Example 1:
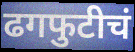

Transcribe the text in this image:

ढगफुटीचं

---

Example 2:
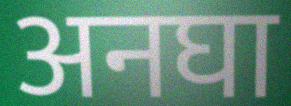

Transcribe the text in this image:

अनघा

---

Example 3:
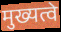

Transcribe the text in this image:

मुख्यत्वे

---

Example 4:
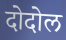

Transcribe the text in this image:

दोदोल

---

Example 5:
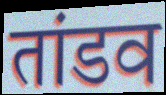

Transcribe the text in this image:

तांडव